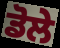
ਡੋਲੇ